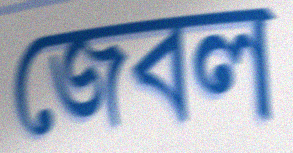
জেবল